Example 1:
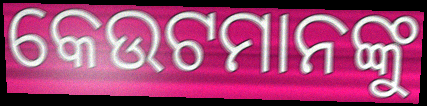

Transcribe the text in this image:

କେଉଟମାନଙ୍କୁ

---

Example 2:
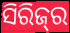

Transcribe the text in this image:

ସିରିଜ୍‌ର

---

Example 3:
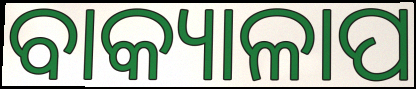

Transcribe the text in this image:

ବାକ୍ୟାଳାପ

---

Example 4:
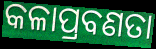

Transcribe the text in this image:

କଳାପ୍ରବଣତା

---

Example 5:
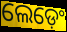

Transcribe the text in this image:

ଲେଡ଼େଂ